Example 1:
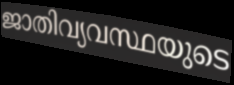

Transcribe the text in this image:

ജാതിവ്യവസ്ഥയുടെ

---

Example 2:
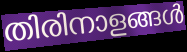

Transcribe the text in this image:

തിരിനാളങ്ങൾ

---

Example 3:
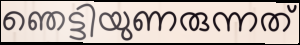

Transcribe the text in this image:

ഞെട്ടിയുണരുന്നത്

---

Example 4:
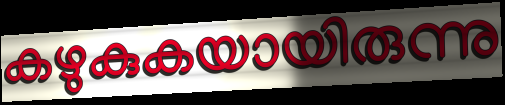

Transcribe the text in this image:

കഴുകുകയായിരുന്നു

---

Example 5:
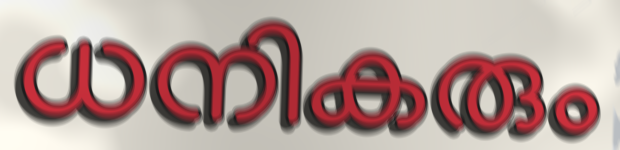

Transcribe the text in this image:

ധനികരും